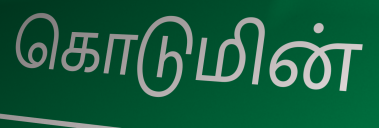
கொடுமின்